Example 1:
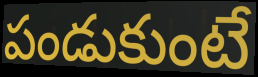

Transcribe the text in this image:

పండుకుంటే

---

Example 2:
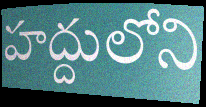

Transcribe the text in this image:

హద్దులోని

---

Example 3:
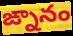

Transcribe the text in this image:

ఙ్నానం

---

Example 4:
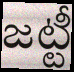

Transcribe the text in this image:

జట్టీ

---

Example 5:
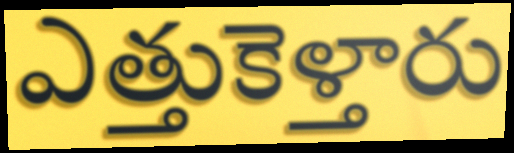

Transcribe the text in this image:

ఎత్తుకెళ్తారు